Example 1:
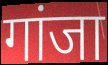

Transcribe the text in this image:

गांजा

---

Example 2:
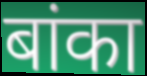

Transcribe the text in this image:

बांका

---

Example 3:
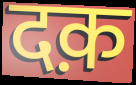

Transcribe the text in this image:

दक़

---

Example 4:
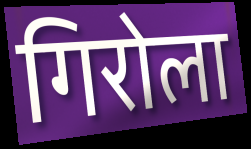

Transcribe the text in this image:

गिरोला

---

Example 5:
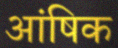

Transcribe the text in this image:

आंषिक